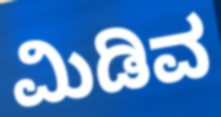
ಮಿಡಿವ